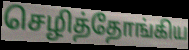
செழித்தோங்கிய